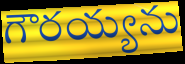
గౌరయ్యను